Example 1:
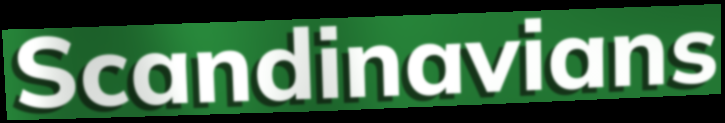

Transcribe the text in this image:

Scandinavians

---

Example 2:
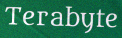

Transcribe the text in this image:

Terabyte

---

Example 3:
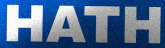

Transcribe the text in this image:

HATH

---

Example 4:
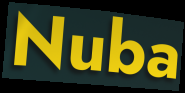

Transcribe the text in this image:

Nuba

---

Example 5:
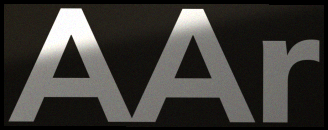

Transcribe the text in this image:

AAr